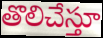
తొలిచేస్తూ